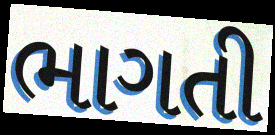
ભાગતી